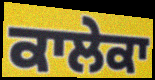
ਕਾਲੇਕਾ